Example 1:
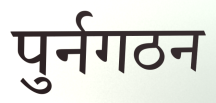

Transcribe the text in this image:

पुर्नगठन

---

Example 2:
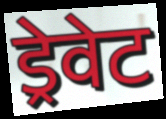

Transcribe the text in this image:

ड्रेवेट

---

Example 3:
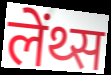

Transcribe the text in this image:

लेंथ्स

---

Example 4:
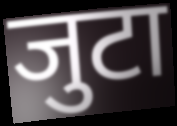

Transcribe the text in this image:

जुटा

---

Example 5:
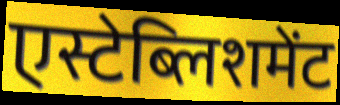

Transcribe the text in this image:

एस्टेब्लिशमेंट